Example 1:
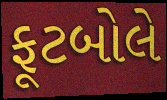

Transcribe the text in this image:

ફૂટબોલે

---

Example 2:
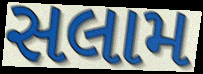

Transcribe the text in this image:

સલામ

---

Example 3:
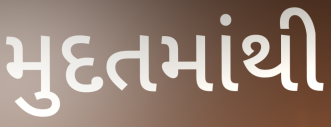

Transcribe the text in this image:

મુદતમાંથી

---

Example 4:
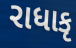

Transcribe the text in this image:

રાધાકૃ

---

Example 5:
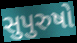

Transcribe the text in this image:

સુપુરુષો